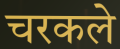
चरकले